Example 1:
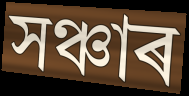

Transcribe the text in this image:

সঞ্চাৰ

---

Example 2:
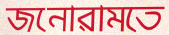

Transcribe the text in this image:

জনোৱামতে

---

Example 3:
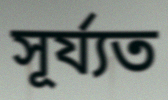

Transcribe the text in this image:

সূৰ্য্যত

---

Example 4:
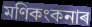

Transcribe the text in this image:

মণিকংকনাৰ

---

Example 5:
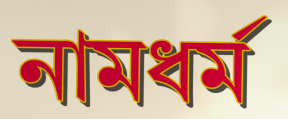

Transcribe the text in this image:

নামধৰ্ম